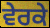
ਵੇਰਕੇ